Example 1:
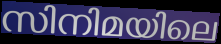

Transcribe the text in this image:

സിനിമയിലെ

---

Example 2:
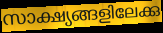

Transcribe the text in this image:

സാക്ഷ്യങ്ങളിലേക്കു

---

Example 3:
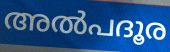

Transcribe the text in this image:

അൽപദൂര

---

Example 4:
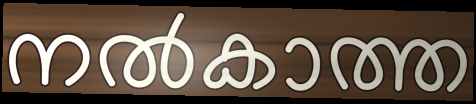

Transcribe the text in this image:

നൽകാത്ത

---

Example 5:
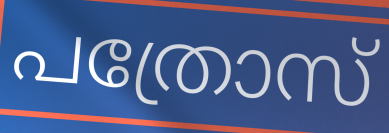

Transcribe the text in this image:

പത്രോസ്